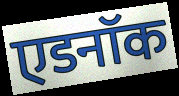
एडनॉक